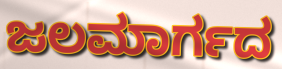
ಜಲಮಾರ್ಗದ